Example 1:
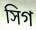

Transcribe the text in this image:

সিগ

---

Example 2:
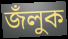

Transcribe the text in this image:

জঁলুক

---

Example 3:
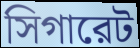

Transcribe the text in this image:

সিগারেট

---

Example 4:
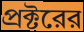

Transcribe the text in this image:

প্রক্টরের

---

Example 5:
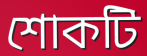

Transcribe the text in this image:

শোকটি